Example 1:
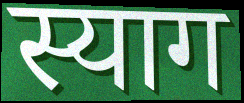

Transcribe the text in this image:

स्याग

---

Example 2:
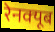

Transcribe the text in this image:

रेनक्यूब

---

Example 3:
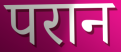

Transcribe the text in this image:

परान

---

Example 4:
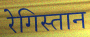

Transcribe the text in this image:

रेगिस्तान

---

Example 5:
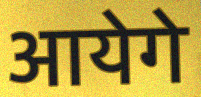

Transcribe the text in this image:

आयेगे